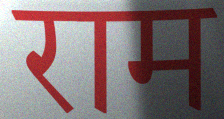
राम